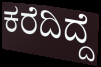
ಕರೆದಿದ್ದೆ